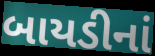
બાયડીનાં